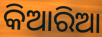
କିଆରିଆ